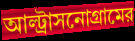
আল্ট্রাসনোগ্রামের